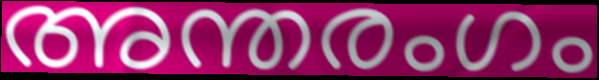
അന്തരംഗം